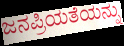
ಜನಪ್ರಿಯತೆಯನ್ನು